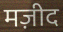
मज़ीद